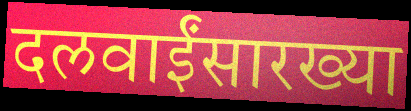
दलवाईंसारख्या